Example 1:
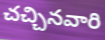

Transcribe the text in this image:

చచ్చినవారి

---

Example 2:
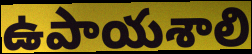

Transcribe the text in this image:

ఉపాయశాలి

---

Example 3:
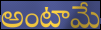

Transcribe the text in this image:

అంటామే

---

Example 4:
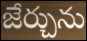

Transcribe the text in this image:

జేర్చును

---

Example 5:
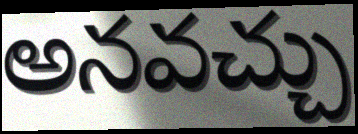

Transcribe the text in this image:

అనవచ్చు